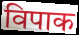
विपाक